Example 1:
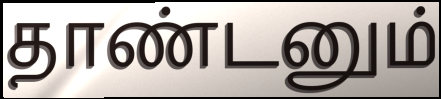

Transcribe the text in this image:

தாண்டனும்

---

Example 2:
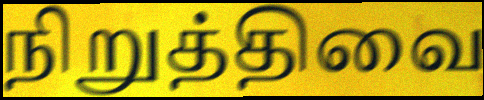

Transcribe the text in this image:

நிறுத்திவை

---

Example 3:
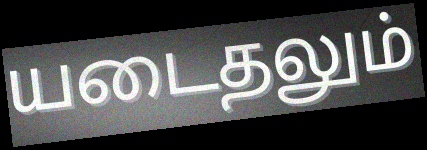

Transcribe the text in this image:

யடைதலும்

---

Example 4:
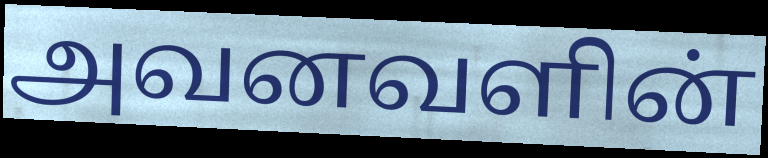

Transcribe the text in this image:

அவனவளின்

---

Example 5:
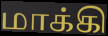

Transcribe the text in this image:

மாக்கி